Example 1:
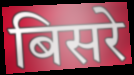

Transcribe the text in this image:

बिसरे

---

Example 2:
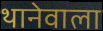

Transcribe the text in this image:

थानेवाला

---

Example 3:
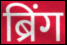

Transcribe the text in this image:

ब्रिंग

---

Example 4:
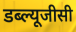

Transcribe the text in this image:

डब्ल्यूजीसी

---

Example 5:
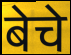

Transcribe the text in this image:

बेचे